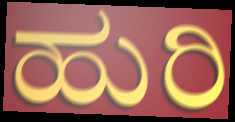
ಹುರಿ